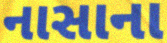
નાસાના